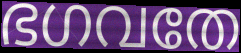
ഭഗവതേ